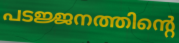
പടജ്ജനത്തിന്റെ